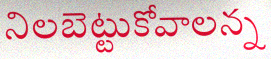
నిలబెట్టుకోవాలన్న